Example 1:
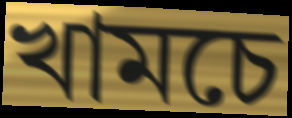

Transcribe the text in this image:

খামচে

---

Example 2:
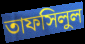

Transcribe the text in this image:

তাফসিলুল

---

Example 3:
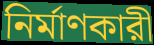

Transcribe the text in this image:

নির্মাণকারী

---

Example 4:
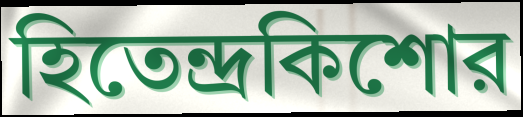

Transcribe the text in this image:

হিতেন্দ্রকিশোর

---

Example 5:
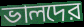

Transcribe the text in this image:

ভালদের